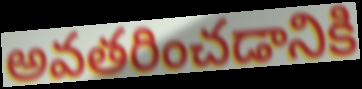
అవతరించడానికి